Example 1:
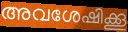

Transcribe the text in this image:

അവശേഷിക്കൂ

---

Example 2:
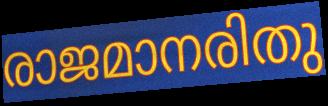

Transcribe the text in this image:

രാജമാനരിതു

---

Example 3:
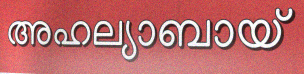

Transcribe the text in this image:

അഹല്യാബായ്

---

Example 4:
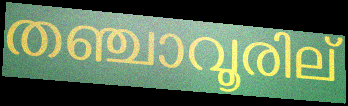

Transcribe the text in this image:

തഞ്ചാവൂരില്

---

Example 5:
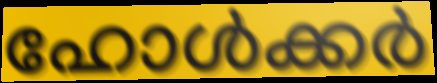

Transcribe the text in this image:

ഹോൾക്കർ